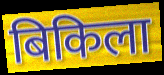
बिकिला